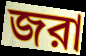
জরা